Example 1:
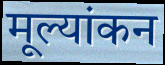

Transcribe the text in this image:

मूल्‍यांकन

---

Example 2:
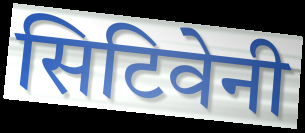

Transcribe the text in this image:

सिटिवेनी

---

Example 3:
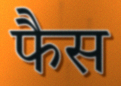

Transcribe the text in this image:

फैस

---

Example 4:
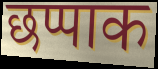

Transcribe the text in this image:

छप्पाक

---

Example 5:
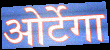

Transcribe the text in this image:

ओर्टेगा